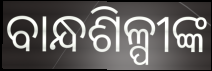
ବାନ୍ଧଶିଳ୍ପୀଙ୍କ